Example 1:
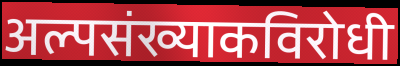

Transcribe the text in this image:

अल्पसंख्याकविरोधी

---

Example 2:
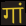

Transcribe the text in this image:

गां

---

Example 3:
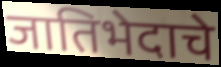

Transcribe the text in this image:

जातिभेदाचे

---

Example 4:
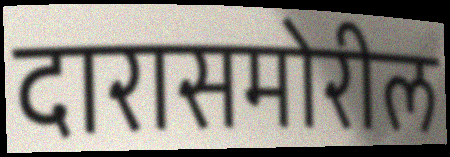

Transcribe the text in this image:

दारासमोरील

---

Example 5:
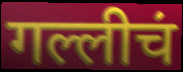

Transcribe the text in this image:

गल्लीचं